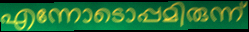
എന്നോടൊപ്പമിരുന്ന്